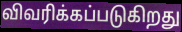
விவரிக்கப்படுகிறது